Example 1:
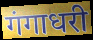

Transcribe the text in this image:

गंगाधरी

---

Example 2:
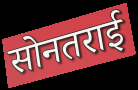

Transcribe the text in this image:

सोनतराई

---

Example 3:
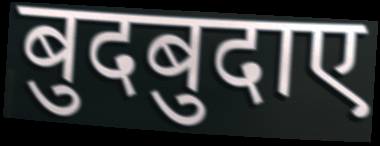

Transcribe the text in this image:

बुदबुदाए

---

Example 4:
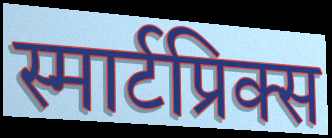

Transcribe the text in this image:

स्मार्टप्रिक्स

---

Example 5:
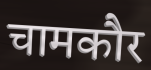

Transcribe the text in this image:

चामकौर